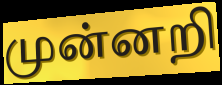
முன்னறி